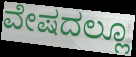
ವೇಷದಲ್ಲೂ